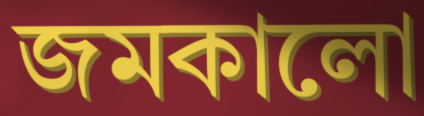
জমকালো